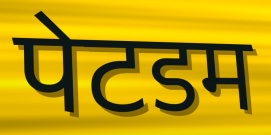
पेटडम